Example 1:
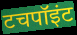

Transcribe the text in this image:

टचपॉइंट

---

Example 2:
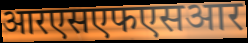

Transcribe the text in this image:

आरएसएफएसआर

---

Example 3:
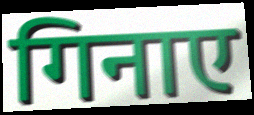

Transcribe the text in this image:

गिनाए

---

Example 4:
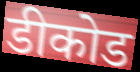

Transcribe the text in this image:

डीकोड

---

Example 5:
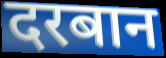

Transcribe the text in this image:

दरबान